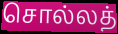
சொல்லத்